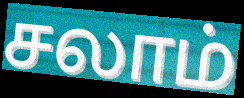
சலாம்